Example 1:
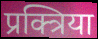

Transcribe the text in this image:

प्रक्त्रिया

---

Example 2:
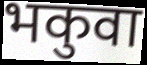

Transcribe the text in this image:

भकुवा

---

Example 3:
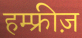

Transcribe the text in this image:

हम्फ्रीज़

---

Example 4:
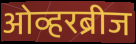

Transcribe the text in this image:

ओव्हरब्रीज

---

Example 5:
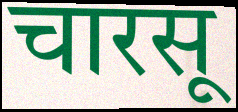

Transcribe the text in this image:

चारसू